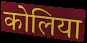
कोलिया